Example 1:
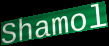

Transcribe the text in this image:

Shamol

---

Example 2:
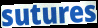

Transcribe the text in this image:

sutures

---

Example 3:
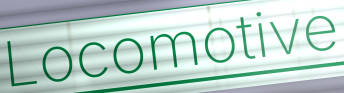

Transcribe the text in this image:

Locomotive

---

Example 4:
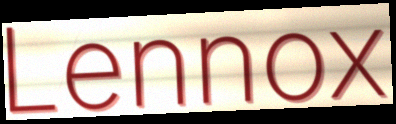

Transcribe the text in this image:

Lennox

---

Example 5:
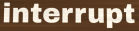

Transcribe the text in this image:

interrupt